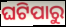
ଘଟିପାରୁ